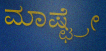
ಮಾಷ್ಟ್ರೇ